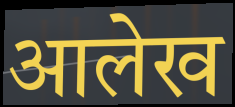
आलेख